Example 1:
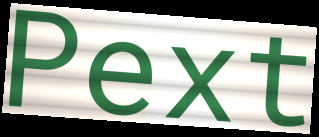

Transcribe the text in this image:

Pext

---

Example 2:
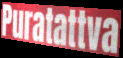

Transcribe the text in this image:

Puratattva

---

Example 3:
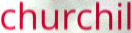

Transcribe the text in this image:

churchil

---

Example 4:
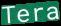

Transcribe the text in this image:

Tera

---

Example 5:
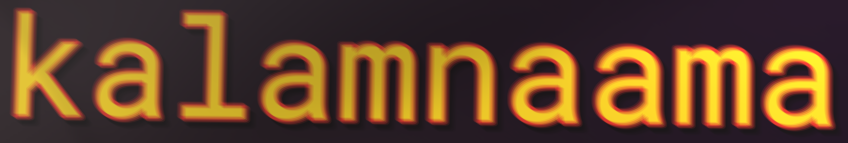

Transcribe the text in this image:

kalamnaama